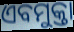
ଏବମୁକ୍ତା